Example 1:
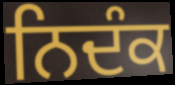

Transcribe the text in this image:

ਨਿਦੰਕ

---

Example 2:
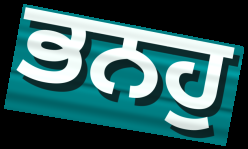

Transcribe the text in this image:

ਭਨਹੁ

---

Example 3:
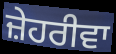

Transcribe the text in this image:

ਜ਼ੇਹਰੀਵਾ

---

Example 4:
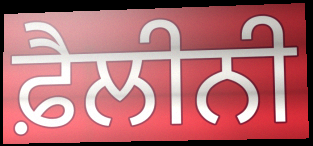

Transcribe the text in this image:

ਫ਼ੈਲੀਨੀ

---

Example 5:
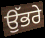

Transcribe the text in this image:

ਉੱਭਰੇ